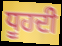
ਧੂਹਦੀ